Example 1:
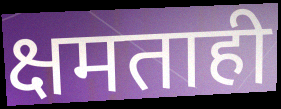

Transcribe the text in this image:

क्षमताही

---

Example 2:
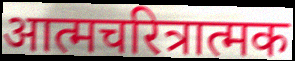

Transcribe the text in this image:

आत्मचरित्रात्मक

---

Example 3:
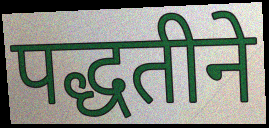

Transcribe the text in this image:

पद्धतीने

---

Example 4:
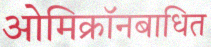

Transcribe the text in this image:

ओमिक्रॉनबाधित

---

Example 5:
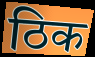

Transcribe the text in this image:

ठिक